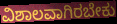
ವಿಶಾಲವಾಗಿರಬೇಕು